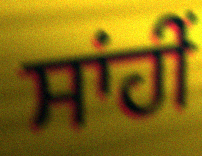
ਸਾਂਹੀਂ